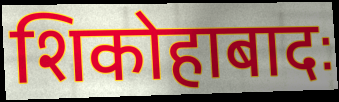
शिकोहाबादः